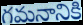
గమనానికి